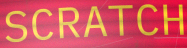
SCRATCH